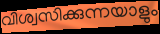
വിശ്വസിക്കുന്നയാളും